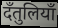
दँतुलियाँ